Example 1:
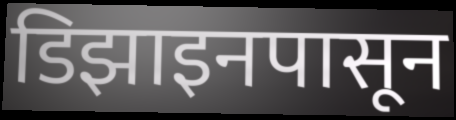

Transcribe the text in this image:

डिझाइनपासून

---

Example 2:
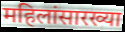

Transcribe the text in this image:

महिलांसारख्या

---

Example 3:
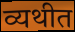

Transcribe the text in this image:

व्यथीत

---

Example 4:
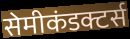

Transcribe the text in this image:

सेमीकंडक्टर्स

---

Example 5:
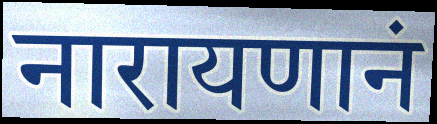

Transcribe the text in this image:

नारायणानं